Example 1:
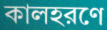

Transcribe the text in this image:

কালহরণে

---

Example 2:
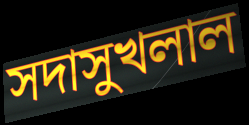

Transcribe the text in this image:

সদাসুখলাল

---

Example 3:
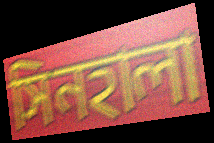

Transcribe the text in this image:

সিনহালা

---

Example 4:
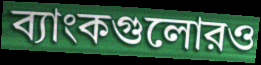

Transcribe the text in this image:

ব্যাংকগুলোরও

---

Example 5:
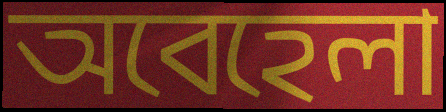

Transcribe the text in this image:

অবেহেলা